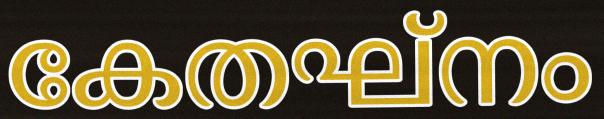
കേതഘ്നം